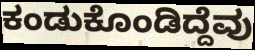
ಕಂಡುಕೊಂಡಿದ್ದೆವು